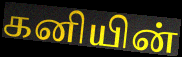
கனியின்